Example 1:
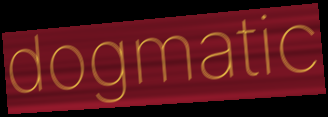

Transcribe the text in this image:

dogmatic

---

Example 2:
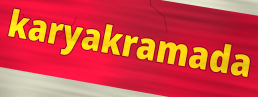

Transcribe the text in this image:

karyakramada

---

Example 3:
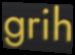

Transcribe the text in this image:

grih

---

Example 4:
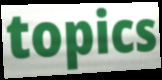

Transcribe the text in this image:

topics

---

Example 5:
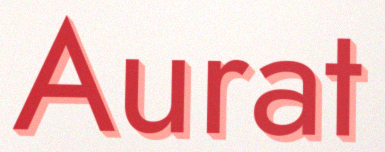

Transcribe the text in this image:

Aurat